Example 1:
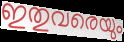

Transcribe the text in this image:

ഇതുവരെയും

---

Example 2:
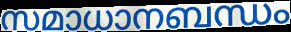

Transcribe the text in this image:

സമാധാനബന്ധം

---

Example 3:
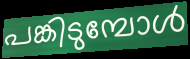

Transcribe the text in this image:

പങ്കിടുമ്പോൾ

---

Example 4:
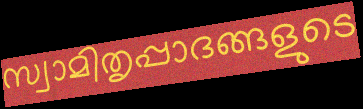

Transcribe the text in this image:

സ്വാമിതൃപ്പാദങ്ങളുടെ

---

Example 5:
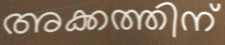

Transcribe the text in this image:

അക്കത്തിന്